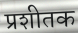
प्रशीतक